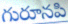
గురూనపి